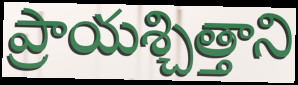
ప్రాయశ్చిత్తాని